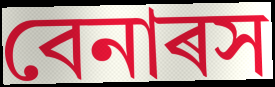
বেনাৰস